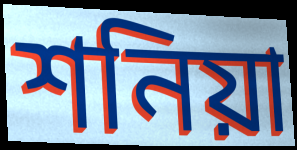
শনিয়া